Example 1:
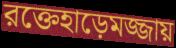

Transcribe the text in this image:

রক্তেহাড়েমজ্জায়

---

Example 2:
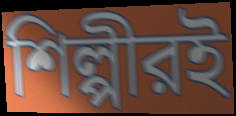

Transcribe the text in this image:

শিল্পীরই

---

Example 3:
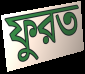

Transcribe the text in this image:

ফুরত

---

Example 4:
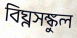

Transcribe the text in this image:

বিঘ্নসঙ্কুল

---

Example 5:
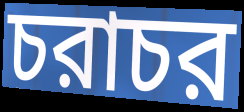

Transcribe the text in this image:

চরাচর